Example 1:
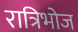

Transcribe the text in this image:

रात्रिभोज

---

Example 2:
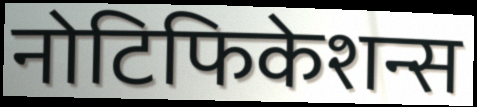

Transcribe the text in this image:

नोटिफिकेशन्स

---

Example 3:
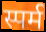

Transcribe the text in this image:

स्पर्म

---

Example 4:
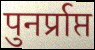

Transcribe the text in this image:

पुनर्प्राप्त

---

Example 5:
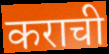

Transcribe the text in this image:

कराची